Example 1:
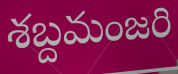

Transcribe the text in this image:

శబ్దమంజరి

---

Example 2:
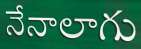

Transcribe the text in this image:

నేనాలాగు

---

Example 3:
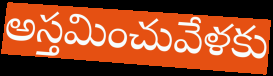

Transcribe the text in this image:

అస్తమించువేళకు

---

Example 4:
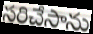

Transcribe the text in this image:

సరిచేసాను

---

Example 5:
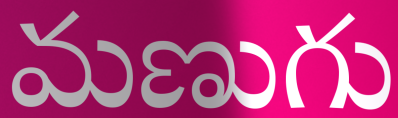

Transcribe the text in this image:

మణుగు